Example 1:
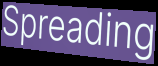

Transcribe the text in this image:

Spreading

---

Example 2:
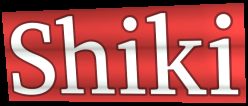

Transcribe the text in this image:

Shiki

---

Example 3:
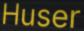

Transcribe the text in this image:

Huser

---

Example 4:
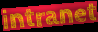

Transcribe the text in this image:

intranet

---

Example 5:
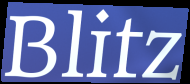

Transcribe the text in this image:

Blitz